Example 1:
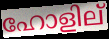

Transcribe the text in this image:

ഹോളില്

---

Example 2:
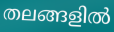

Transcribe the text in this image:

തലങ്ങളിൽ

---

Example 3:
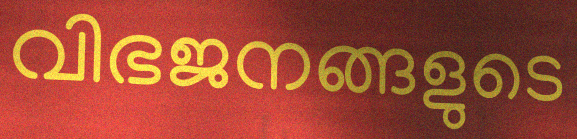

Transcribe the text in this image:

വിഭജനങ്ങളുടെ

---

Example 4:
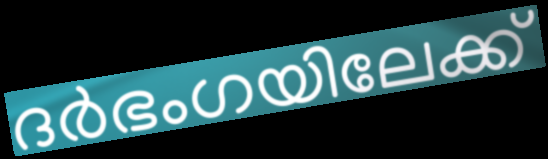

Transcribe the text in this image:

ദർഭംഗയിലേക്ക്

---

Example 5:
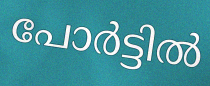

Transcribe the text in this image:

പോർട്ടിൽ